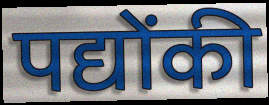
पद्योंकी